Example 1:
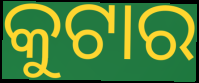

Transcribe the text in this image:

କୁଟାର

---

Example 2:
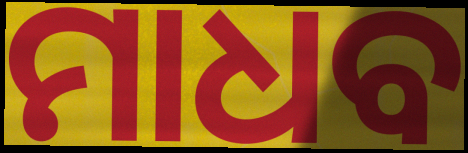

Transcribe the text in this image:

ମାଧବ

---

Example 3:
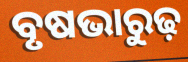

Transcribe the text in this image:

ବୃଷଭାରୁଢ଼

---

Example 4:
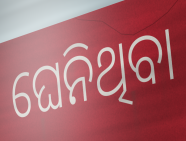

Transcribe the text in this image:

ଘେନିଥିବା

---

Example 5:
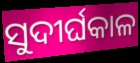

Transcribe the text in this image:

ସୁଦୀର୍ଘକାଳ